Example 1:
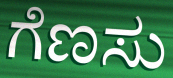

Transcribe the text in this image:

ಗೆಣಸು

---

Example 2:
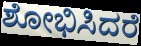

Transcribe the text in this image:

ಶೋಭಿಸಿದರೆ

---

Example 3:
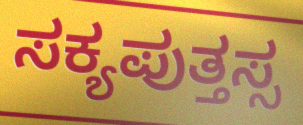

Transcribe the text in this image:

ಸಕ್ಯಪುತ್ತಸ್ಸ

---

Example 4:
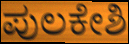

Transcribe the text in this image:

ಪುಲಕೇಶಿ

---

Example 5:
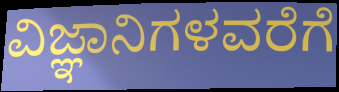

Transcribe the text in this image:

ವಿಜ್ಞಾನಿಗಳವರೆಗೆ